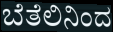
ಬೆತೆಲಿನಿಂದ